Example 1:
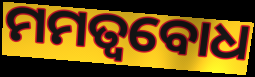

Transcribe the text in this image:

ମମତ୍ବବୋଧ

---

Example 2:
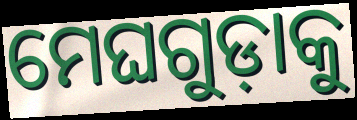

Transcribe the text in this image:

ମେଘଗୁଡ଼ାକୁ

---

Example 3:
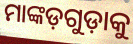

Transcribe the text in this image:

ମାଙ୍କଡ଼ଗୁଡ଼ାକୁ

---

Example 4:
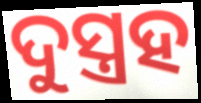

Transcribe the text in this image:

ଦୁସ୍ତ୍ରହ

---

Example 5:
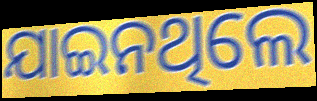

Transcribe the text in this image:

ଯାଇନଥିଲେ